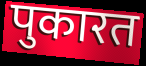
पुकारत